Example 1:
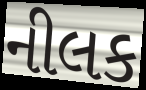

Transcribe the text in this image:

નીલક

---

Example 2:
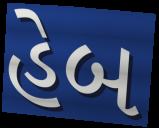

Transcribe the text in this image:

હેબ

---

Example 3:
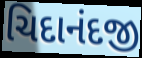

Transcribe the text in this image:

ચિદાનંદજી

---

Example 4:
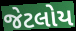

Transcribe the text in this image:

જેટલોય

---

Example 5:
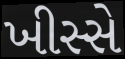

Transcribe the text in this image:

ખીસ્સે